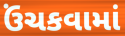
ઉંચકવામાં